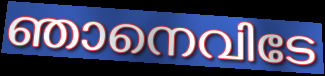
ഞാനെവിടേ